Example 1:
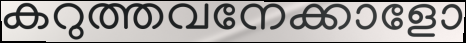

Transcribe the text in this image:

കറുത്തവനേക്കാളോ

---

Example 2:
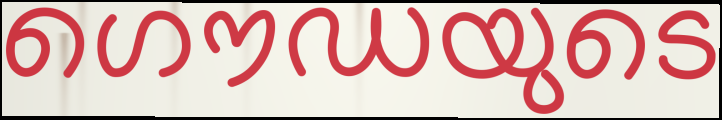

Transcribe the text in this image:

ഗൌഡയുടെ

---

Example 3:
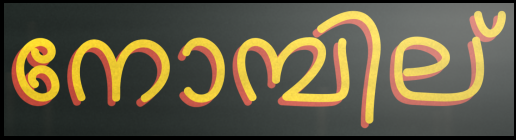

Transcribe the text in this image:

നോമ്പില്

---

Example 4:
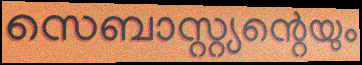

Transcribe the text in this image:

സെബാസ്റ്റ്യന്റെയും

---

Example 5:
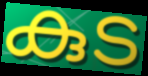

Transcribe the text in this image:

കുട